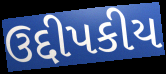
ઉદ્દીપકીય